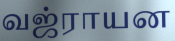
வஜ்ராயன